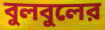
বুলবুলের